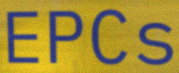
EPCs